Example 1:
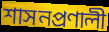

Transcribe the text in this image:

শাসনপ্রণালী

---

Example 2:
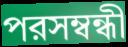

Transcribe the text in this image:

পরসম্বন্ধী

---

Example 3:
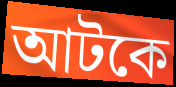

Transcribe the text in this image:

আটকে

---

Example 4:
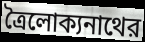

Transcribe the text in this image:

ত্রৈলোক্যনাথের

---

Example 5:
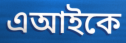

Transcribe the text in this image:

এআইকে